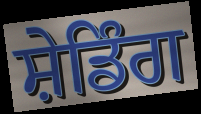
ਸ਼ੇਡਿੰਗ